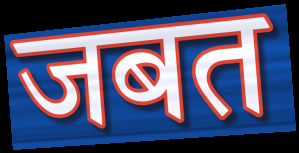
जबत